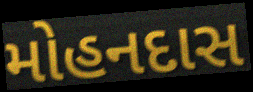
મોહનદાસ